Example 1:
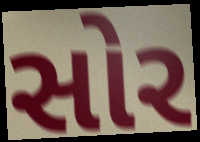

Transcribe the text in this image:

સોર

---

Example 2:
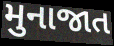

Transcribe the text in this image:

મુનાજાત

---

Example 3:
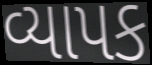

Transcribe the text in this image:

વ્યાપક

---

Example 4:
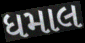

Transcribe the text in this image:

ધમાલ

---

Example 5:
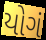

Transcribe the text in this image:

યોગં